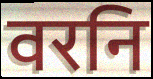
वरनि